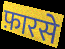
फ़ारसे